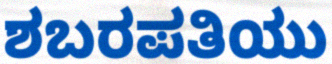
ಶಬರಪತಿಯು